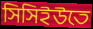
সিসিইউতে